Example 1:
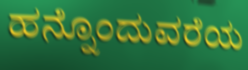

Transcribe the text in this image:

ಹನ್ನೊಂದುವರೆಯ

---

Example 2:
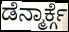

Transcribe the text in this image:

ಡೆನ್ಮಾರ್ಕ್ಗೆ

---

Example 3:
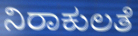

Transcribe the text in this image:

ನಿರಾಕುಲತೆ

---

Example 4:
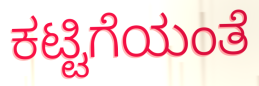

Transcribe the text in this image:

ಕಟ್ಟಿಗೆಯಂತೆ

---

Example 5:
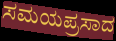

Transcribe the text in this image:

ಸಮಯಪ್ರಸಾದ